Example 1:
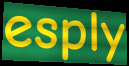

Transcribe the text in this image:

esply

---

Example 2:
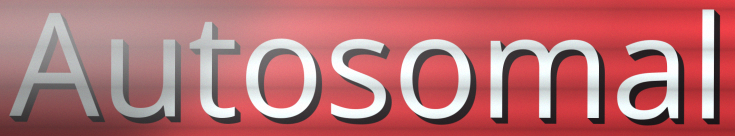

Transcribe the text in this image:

Autosomal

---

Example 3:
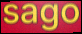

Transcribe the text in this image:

sago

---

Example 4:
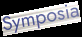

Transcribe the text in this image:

Symposia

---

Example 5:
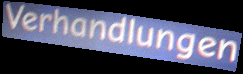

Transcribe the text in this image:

Verhandlungen